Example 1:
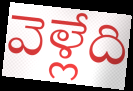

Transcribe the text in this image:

వెళ్లేది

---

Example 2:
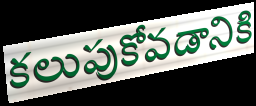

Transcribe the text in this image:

కలుపుకోవడానికి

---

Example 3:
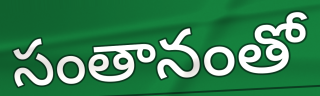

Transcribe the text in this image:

సంతానంతో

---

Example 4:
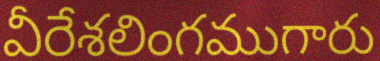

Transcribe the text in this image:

వీరేశలింగముగారు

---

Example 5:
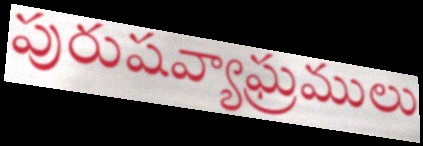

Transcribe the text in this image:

పురుషవ్యాఘ్రములు